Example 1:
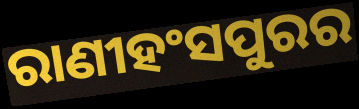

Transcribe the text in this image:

ରାଣୀହଂସପୁରର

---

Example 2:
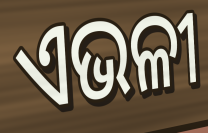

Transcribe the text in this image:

ଏଭଳୀ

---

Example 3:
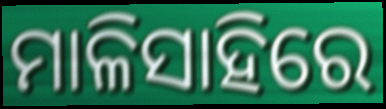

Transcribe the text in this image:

ମାଳିସାହିରେ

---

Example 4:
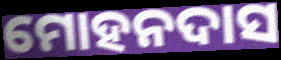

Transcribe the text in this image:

ମୋହନଦାସ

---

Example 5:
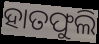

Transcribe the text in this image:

ହାତଫୁଲି